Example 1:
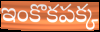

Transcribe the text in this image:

ఇంకొకపక్క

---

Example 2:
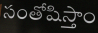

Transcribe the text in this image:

సంతోషిస్తాం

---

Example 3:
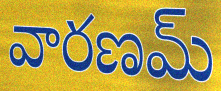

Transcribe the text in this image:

వారణమ్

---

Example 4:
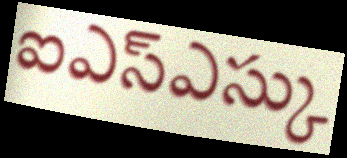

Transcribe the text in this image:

ఐఎస్ఎస్కు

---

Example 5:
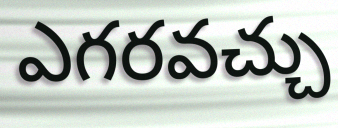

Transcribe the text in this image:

ఎగరవచ్చు